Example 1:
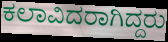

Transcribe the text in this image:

ಕಲಾವಿದರಾಗಿದ್ದರು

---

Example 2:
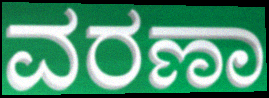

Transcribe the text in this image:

ವರಣಾ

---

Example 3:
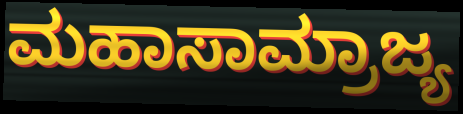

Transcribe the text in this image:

ಮಹಾಸಾಮ್ರಾಜ್ಯ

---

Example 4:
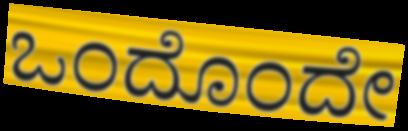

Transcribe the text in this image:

ಒಂದೊಂದೇ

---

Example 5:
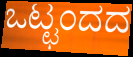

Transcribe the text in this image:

ಒಟ್ಟಂದದ